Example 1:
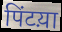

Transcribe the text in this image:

पिंटय़ा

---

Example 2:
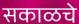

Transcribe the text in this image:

सकाळचे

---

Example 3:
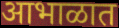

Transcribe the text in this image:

आभाळात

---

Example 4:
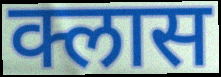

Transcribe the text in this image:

क्लास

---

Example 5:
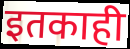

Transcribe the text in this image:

इतकाही